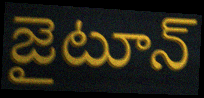
జైటూన్